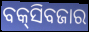
ବକ୍‌ସିବଜାର